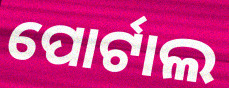
ପୋର୍ଟାଲ